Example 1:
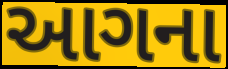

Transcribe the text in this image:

આગના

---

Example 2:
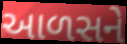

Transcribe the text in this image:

આળસને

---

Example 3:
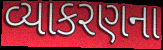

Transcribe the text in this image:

વ્યાકરણના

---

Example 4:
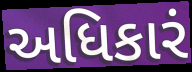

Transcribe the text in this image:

અધિકારં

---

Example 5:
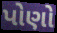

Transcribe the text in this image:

પોણો